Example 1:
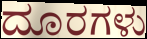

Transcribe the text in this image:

ದೂರಗಳು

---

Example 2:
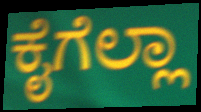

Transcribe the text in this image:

ಕೈಗೆಲ್ಲಾ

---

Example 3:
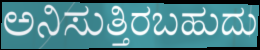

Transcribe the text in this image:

ಅನಿಸುತ್ತಿರಬಹುದು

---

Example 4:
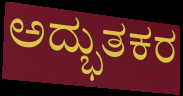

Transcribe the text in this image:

ಅದ್ಭುತಕರ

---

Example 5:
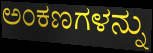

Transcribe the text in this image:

ಅಂಕಣಗಳನ್ನು